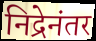
निद्रेनंतर